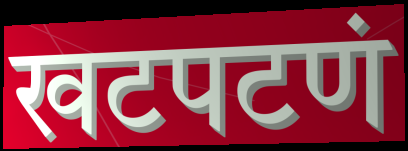
खटपटणं